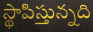
స్థాపిస్తున్నది